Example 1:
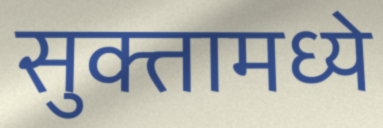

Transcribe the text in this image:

सुक्तामध्ये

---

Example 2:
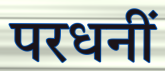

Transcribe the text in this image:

परधनीं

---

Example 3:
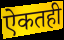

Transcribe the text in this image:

ऐकतही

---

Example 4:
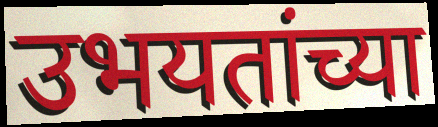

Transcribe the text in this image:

उभयतांच्या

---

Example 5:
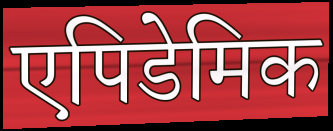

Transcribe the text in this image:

एपिडेमिक